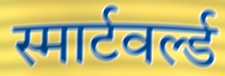
स्मार्टवर्ल्ड